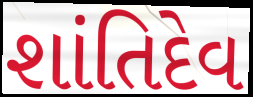
શાંતિદેવ